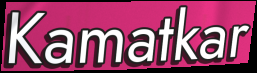
Kamatkar